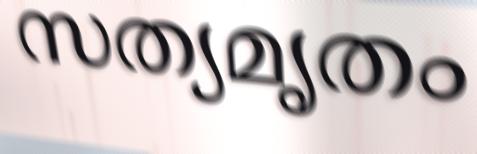
സത്യമൃതം